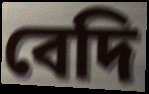
বেদি